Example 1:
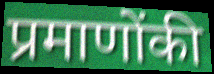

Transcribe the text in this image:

प्रमाणोंकी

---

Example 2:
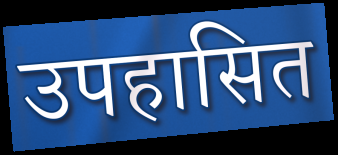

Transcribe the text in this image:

उपहासित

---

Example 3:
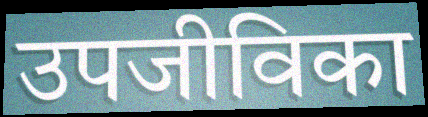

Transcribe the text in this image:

उपजीविका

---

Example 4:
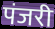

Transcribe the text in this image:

पंजरी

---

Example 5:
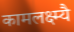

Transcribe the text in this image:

कामलक्ष्म्यै